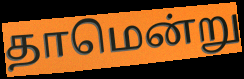
தாமென்று